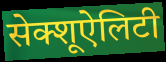
सेक्शूऐलिटी